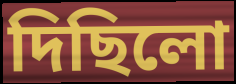
দিছিলো